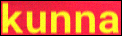
kunna